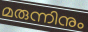
മരുന്നിനും